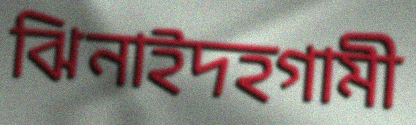
ঝিনাইদহগামী